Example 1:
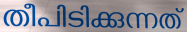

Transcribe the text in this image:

തീപിടിക്കുന്നത്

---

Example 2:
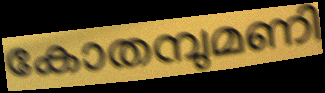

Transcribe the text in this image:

കോതമ്പുമണി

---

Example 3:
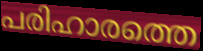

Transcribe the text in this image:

പരിഹാരത്തെ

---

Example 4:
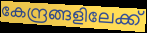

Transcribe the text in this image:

കേന്ദ്രങ്ങളിലേക്ക്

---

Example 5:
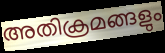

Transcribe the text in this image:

അതിക്രമങ്ങളും